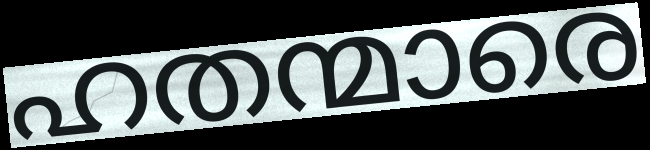
ഹതന്മാരെ